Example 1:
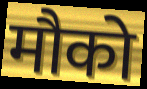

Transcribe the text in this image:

मौको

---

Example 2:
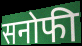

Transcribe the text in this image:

सनोफी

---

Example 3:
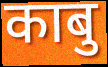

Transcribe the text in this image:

काबु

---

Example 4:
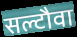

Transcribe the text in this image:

सल्टौवा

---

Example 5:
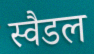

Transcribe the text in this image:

स्वैडल